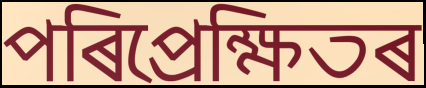
পৰিপ্ৰেক্ষিতৰ